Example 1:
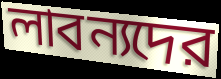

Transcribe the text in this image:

লাবন্যদের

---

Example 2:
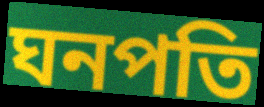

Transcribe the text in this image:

ঘনপতি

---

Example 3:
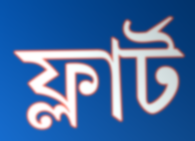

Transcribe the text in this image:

ফ্লার্ট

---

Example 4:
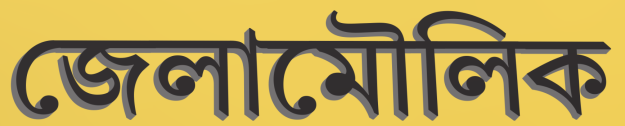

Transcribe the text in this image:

জেলামৌলিক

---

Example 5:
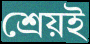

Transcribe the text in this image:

শ্রেয়ই